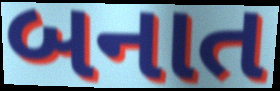
બનાત